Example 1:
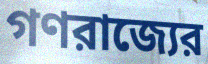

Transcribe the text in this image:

গণরাজ্যের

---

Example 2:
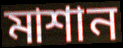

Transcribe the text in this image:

মাশান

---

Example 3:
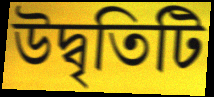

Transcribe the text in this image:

উদ্বৃতিটি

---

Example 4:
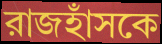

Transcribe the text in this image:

রাজহাঁসকে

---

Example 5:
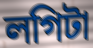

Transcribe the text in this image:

লগিটা